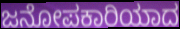
ಜನೋಪಕಾರಿಯಾದ